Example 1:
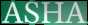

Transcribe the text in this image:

ASHA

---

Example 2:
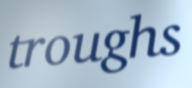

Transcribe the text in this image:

troughs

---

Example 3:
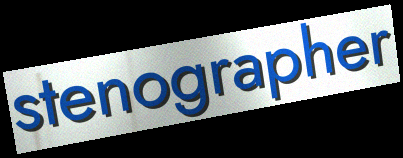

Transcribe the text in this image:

stenographer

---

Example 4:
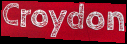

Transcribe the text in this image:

Croydon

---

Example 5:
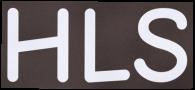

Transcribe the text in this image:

HLS